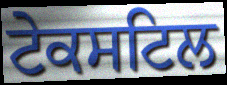
ਟੇਕਸਟਿਲ